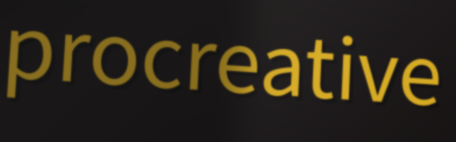
procreative